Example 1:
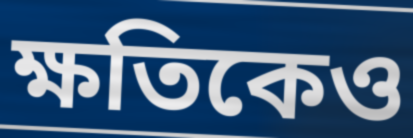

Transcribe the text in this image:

ক্ষতিকেও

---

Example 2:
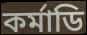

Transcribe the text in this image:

কর্মাডি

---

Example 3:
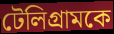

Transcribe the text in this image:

টেলিগ্রামকে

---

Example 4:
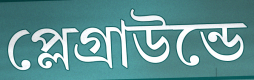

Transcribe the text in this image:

প্লেগ্রাউন্ডে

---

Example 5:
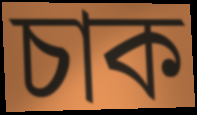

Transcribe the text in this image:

চাক